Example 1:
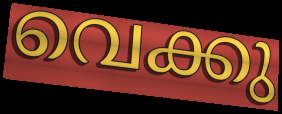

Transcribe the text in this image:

വെക്കു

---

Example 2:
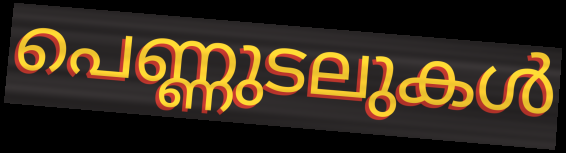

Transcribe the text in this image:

പെണ്ണുടലുകൾ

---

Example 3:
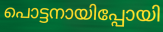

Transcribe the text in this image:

പൊട്ടനായിപ്പോയി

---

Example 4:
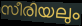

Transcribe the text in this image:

സീരിയലും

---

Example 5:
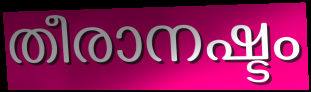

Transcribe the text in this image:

തീരാനഷ്ടം